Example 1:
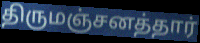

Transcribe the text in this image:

திருமஞ்சனத்தார்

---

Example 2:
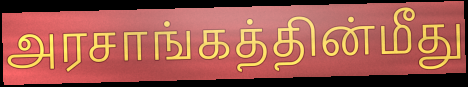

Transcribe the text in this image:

அரசாங்கத்தின்மீது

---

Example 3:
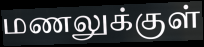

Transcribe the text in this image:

மணலுக்குள்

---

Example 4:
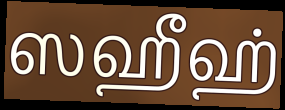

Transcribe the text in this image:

ஸஹீஹ்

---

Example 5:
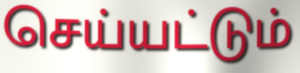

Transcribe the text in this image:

செய்யட்டும்